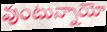
వుంటున్నాయో